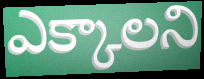
ఎక్కాలని